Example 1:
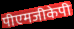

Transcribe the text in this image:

पीएमजीकेपी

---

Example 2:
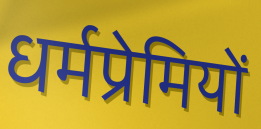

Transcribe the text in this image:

धर्मप्रेमियों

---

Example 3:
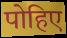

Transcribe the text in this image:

पोहिए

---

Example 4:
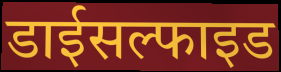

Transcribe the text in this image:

डाईसल्फाइड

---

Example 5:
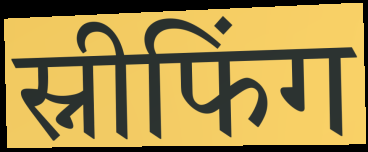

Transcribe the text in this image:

स्नीफिंग